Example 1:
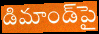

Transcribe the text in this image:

డిమాండ్‌పై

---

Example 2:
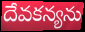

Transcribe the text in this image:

దేవకన్యను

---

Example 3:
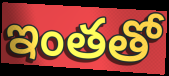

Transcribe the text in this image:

ఇంతతో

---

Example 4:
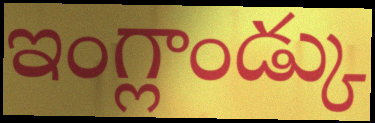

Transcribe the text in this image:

ఇంగ్లాండ్కు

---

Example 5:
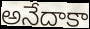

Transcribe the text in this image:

అనేదాకా